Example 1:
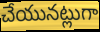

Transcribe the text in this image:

చేయునట్లుగా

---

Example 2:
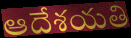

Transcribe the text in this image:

ఆదేశయతి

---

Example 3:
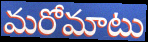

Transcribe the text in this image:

మరోమాటు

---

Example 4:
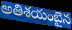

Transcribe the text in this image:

అతిశయంబైన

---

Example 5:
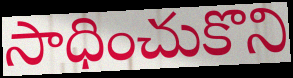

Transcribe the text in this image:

సాధించుకొని